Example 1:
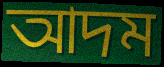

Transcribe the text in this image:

আদম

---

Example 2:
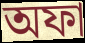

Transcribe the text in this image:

অফা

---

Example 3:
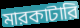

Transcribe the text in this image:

মারকাটারি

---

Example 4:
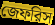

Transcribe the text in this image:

জেফরিস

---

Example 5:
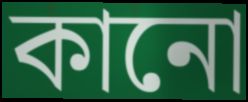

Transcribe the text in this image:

কানো